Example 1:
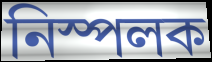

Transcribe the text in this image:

নিস্পলক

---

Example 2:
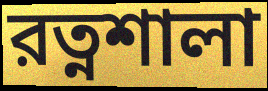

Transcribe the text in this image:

রত্নশালা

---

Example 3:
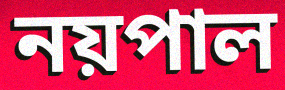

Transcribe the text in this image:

নয়পাল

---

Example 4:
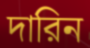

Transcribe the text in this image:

দারিন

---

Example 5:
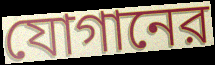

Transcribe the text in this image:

যোগানের